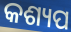
କଶ୍ୟପ